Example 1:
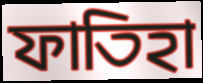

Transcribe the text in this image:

ফাতিহা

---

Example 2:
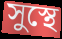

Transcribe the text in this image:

সুস্থে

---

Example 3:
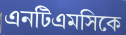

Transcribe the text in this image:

এনটিএমসিকে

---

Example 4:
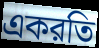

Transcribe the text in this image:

একরতি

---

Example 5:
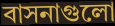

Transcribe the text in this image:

বাসনাগুলো